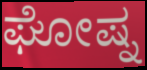
ಘೋಷ್ನ